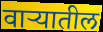
वाऱ्यातील